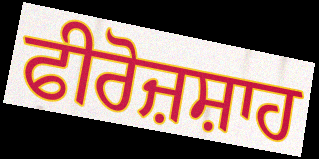
ਫੀਰੋਜ਼ਸ਼ਾਹ